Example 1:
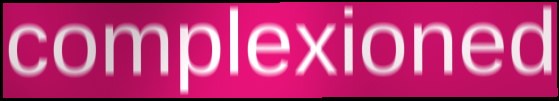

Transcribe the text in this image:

complexioned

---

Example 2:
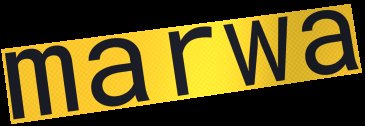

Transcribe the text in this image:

marwa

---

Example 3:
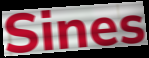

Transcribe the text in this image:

Sines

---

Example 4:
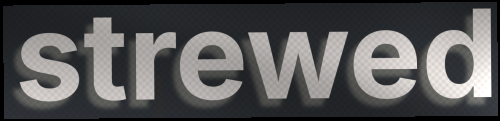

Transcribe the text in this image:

strewed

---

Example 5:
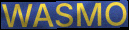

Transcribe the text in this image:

WASMO